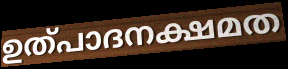
ഉത്പാദനക്ഷമത